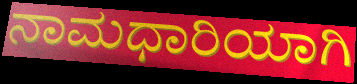
ನಾಮಧಾರಿಯಾಗಿ